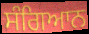
ਸੰਗਿਆਨ